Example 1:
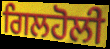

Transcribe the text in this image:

ਗਿਲਹੋਲੀ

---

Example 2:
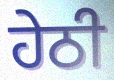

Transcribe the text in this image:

ਹੇਠੀ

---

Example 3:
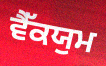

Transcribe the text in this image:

ਵੈੱਕਯੁਮ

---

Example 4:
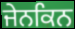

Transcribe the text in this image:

ਜੇਨਕਿਨ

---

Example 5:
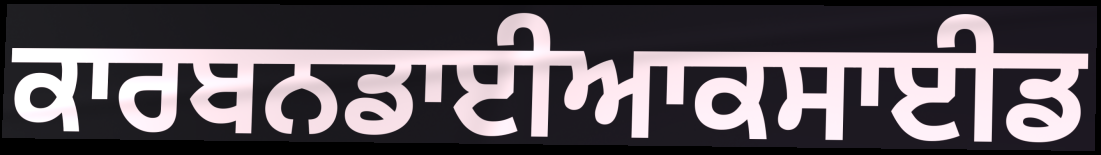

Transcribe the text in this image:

ਕਾਰਬਨਡਾਈਆਕਸਾਈਡ